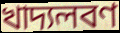
খাদ্যলবণ